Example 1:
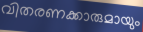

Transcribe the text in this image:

വിതരണക്കാരുമായും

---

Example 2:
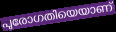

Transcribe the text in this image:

പുരോഗതിയെയാണ്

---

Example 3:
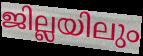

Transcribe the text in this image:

ജില്ലയിലും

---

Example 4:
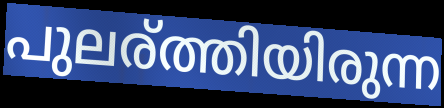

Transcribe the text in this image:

പുലര്ത്തിയിരുന്ന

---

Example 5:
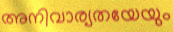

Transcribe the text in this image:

അനിവാര്യതയേയും